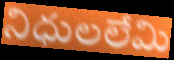
నిధులలేమి